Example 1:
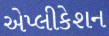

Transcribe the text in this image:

એપ્લીકેશન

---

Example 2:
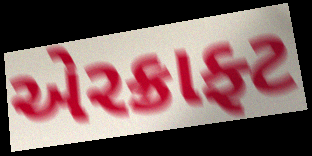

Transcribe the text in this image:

એરક્રાફ્ટ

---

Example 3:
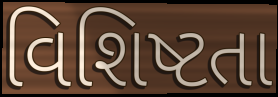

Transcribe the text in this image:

વિશિષ્ટતા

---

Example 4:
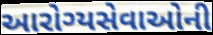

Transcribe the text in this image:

આરોગ્યસેવાઓની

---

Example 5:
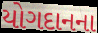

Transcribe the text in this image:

યોગદાનના